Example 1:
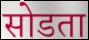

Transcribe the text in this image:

सोडता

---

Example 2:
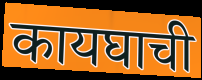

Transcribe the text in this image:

कायघाची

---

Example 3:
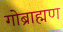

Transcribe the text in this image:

गोब्राह्मण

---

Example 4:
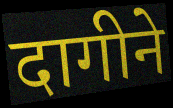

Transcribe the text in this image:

दागीने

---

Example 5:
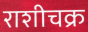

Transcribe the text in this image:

राशीचक्र